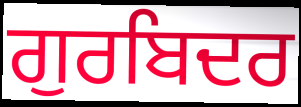
ਗੁਰਬਿਦਰ